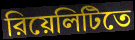
রিয়েলিটিতে